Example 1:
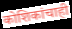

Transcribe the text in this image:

कोशिकांचाही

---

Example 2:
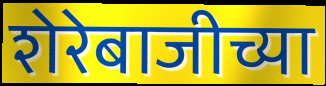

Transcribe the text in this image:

शेरेबाजीच्या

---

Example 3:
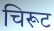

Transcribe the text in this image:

चिरूट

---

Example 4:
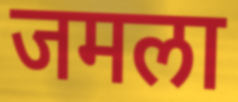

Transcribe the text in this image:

जमला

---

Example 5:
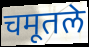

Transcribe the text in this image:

चमूतले